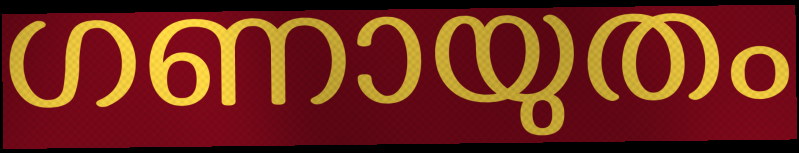
ഗണായുതം